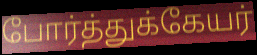
போர்த்துக்கேயர்